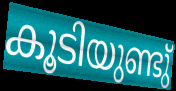
കൂടിയുണ്ടു്